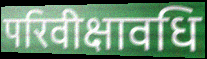
परिवीक्षावधि